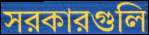
সরকারগুলি